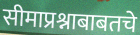
सीमाप्रश्नाबाबतचे